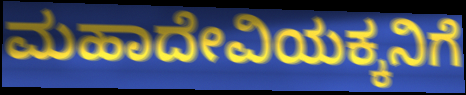
ಮಹಾದೇವಿಯಕ್ಕನಿಗೆ